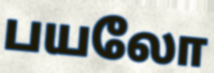
பயலோ